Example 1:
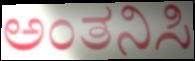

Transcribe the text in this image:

ಅಂತನಿಸಿ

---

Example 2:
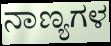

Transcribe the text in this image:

ನಾಣ್ಯಗಳ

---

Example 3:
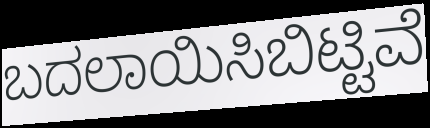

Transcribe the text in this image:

ಬದಲಾಯಿಸಿಬಿಟ್ಟಿವೆ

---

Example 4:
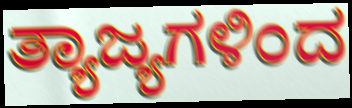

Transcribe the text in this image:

ತ್ಯಾಜ್ಯಗಳಿಂದ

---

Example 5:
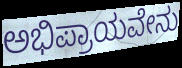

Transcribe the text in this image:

ಅಭಿಪ್ರಾಯವೇನು